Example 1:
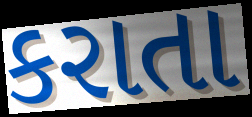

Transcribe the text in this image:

કરાતા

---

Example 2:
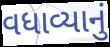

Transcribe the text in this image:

વધાવ્યાનું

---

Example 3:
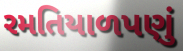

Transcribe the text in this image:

રમતિયાળપણું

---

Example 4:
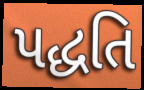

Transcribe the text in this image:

પદ્ધતિ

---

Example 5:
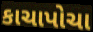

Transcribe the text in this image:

કાચાપોચા